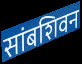
सांबशिवन